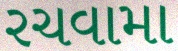
રચવામા